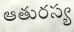
ఆతురస్య